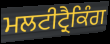
ਮਲਟੀਟ੍ਰੈਕਿੰਗ